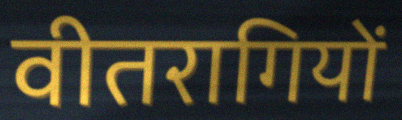
वीतरागियों